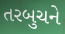
તરબુચને